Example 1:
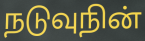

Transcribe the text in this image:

நடுவுநின்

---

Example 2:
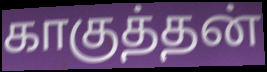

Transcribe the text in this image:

காகுத்தன்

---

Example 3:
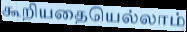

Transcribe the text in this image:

கூறியதையெல்லாம்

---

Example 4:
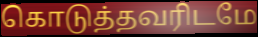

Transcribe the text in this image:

கொடுத்தவரிடமே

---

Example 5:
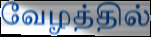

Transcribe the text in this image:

வேழத்தில்